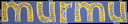
murmu